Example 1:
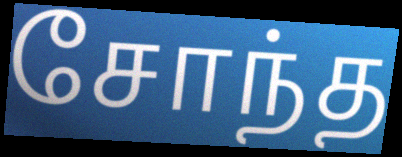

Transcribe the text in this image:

சோந்த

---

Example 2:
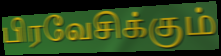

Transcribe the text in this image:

பிரவேசிக்கும்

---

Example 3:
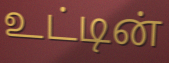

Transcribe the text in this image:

உட்டின்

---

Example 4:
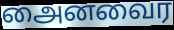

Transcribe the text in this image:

அைனவைர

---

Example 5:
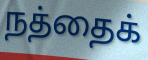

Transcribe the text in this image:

நத்தைக்